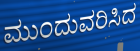
ಮುಂದುವರಿಸಿದ